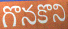
గొనకొని